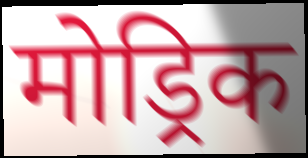
मोड्रिक